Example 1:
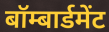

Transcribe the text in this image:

बॉम्बार्डमेंट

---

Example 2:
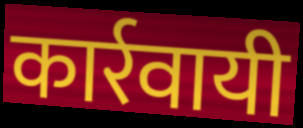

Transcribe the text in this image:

कार्रवायी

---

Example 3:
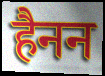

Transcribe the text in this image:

हैनन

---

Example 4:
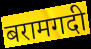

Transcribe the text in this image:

बरामगदी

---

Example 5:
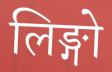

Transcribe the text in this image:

लिङ्गो